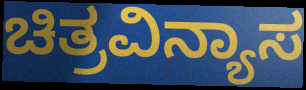
ಚಿತ್ರವಿನ್ಯಾಸ